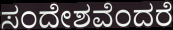
ಸಂದೇಶವೆಂದರೆ